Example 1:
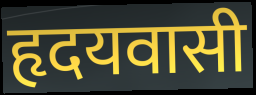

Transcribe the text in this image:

हृदयवासी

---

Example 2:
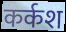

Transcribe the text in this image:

कर्कश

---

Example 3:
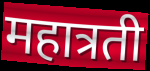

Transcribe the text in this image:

महात्रती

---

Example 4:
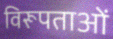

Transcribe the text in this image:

विरूपताओं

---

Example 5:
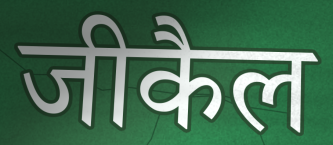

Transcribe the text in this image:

जीकैल